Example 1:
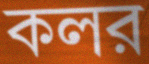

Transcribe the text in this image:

কলর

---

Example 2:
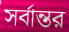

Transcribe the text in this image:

সর্বান্তর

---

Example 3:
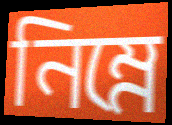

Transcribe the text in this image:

নিম্নে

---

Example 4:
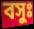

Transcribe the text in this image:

বসুঃ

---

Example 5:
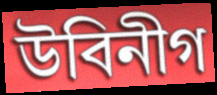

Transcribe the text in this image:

উবিনীগ